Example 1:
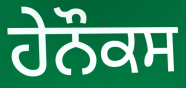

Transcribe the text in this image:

ਹੇਨੌਕਸ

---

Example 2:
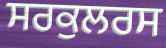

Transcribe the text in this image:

ਸਰਕੁਲਰਸ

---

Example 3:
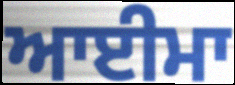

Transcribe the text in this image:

ਆਈਮਾ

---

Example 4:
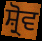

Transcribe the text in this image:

ਸ਼੍ਰੋਵ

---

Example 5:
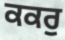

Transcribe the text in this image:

ਕਕਰੁ